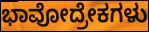
ಭಾವೋದ್ರೇಕಗಳು